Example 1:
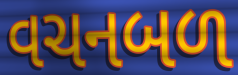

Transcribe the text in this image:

વચનબળ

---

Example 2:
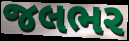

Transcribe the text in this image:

જલભર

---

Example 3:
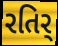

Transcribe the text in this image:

રતિર્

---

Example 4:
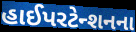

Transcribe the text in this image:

હાઈપરટેન્શનના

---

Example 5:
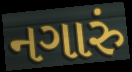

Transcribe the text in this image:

નગારું